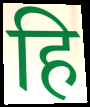
हि